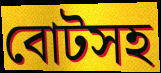
বোটসহ